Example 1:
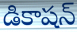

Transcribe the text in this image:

డికాషన్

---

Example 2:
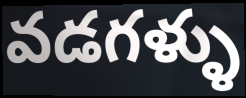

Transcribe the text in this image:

వడగళ్ళు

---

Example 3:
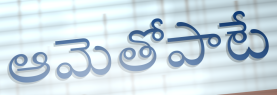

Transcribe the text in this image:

ఆమెతోపాటే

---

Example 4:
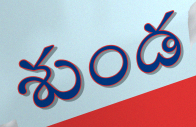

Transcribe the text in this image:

శుండ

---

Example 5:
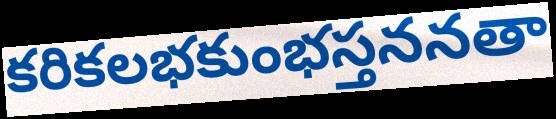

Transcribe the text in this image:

కరికలభకుంభస్తననతా